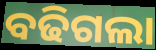
ବଢିଗଲା